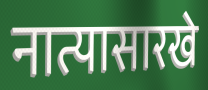
नात्यासारखे